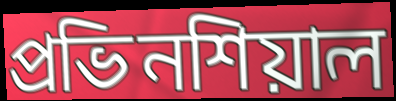
প্রভিনশিয়াল